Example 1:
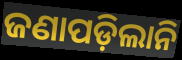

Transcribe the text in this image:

ଜଣାପଡ଼ିଲାନି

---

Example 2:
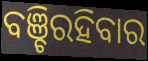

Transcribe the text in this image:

ବଞ୍ଚିରହିବାର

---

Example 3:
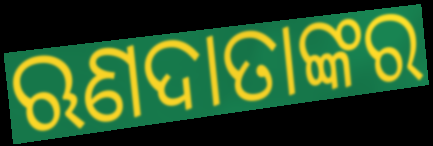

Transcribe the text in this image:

ଋଣଦାତାଙ୍କର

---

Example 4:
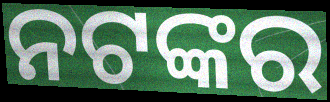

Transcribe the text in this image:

ନଟଙ୍କର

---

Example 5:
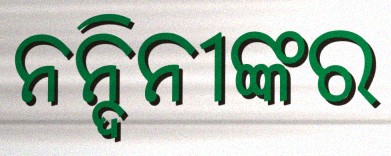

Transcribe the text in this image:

ନନ୍ଦିନୀଙ୍କର